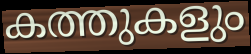
കത്തുകളും